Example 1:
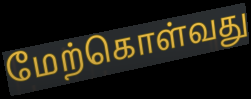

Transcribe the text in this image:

மேற்கொள்வது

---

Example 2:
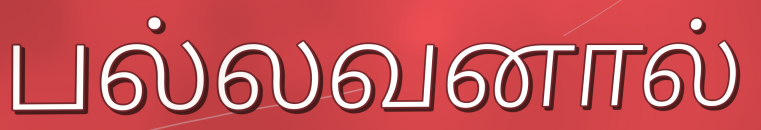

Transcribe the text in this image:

பல்லவனால்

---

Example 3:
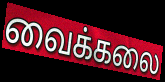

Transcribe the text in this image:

வைக்கலை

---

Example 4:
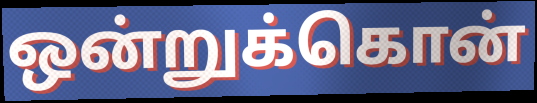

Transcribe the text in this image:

ஒன்றுக்கொன்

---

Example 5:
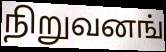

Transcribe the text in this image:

நிறுவனங்